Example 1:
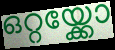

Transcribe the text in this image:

ഒറ്റയ്ക്കോ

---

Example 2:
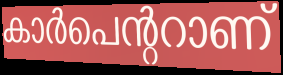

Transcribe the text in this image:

കാർപെന്ററാണ്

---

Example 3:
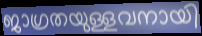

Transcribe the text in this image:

ജാഗ്രതയുള്ളവനായി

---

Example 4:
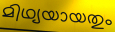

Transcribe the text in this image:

മിഥ്യയായതും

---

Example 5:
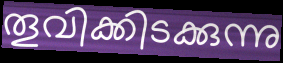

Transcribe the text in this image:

തൂവിക്കിടക്കുന്നു